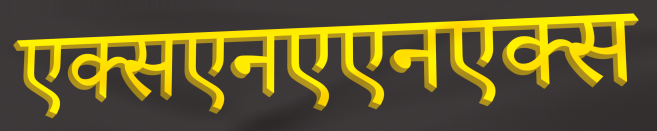
एक्सएनएएनएक्स